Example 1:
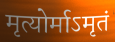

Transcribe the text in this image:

मृत्योर्माऽमृतं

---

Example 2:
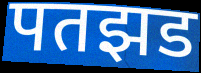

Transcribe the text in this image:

पतझड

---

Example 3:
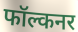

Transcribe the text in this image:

फॉल्कनर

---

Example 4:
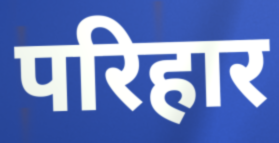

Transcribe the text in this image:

परिहार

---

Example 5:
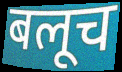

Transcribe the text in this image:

बलूच